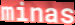
minas